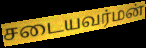
சடையவர்மன்